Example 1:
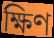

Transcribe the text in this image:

ক্ষিণ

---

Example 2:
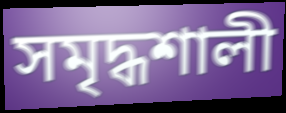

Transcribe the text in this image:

সমৃদ্ধশালী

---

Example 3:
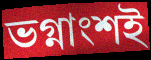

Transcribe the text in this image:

ভগ্নাংশই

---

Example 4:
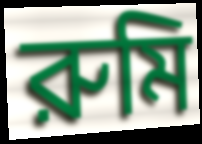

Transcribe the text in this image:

ৰুমি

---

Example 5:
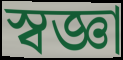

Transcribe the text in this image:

স্বজ্ঞা